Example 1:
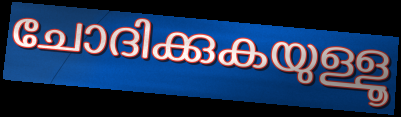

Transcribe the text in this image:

ചോദിക്കുകയുള്ളൂ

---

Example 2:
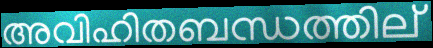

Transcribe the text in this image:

അവിഹിതബന്ധത്തില്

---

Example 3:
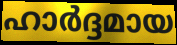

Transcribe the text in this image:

ഹാർദ്ദമായ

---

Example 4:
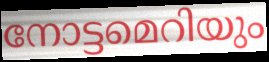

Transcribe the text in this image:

നോട്ടമെറിയും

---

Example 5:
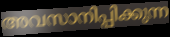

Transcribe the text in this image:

അവസാനിപ്പിക്കുന്ന